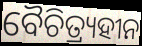
ବୈଚିତ୍ର୍ୟହୀନ